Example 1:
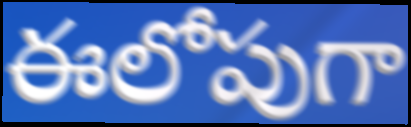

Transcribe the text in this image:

ఈలోపుగా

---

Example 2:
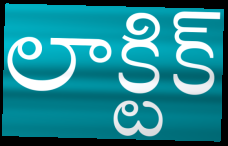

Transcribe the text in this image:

లాక్టిక్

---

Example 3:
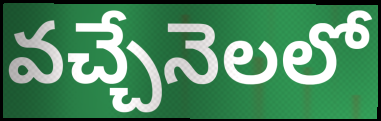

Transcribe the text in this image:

వచ్చేనెలలో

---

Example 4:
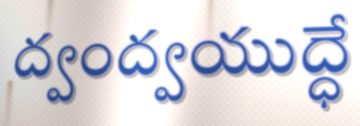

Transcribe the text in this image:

ద్వంద్వయుద్ధే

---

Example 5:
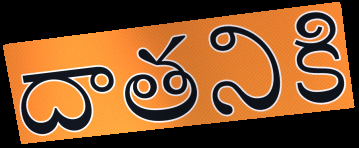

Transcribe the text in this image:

దాతనికి